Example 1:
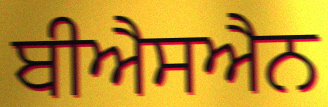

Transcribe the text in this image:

ਬੀਐਸਐਨ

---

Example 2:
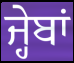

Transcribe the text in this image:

ਜ੍ਹੇਬਾਂ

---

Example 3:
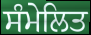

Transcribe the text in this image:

ਸੰਮੇਲਿਤ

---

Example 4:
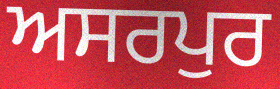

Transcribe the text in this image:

ਅਸਰਪੁਰ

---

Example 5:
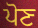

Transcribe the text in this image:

ਪੋਣ